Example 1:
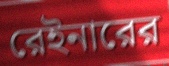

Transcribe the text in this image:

রেইনারের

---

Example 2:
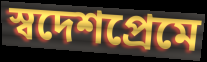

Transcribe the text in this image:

স্বদেশপ্রেমে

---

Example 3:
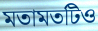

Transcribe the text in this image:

মতামতটিও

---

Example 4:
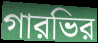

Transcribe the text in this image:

গারভির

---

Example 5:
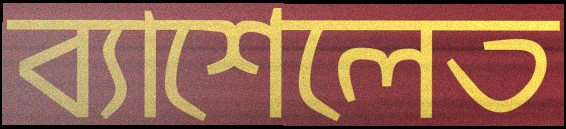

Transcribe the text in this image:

ব্যাশেলেত